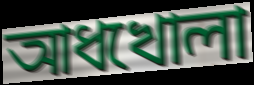
আধখোলা